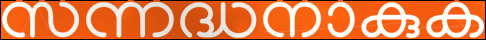
സന്നദ്ധനാകുക